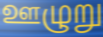
ஊழுறு